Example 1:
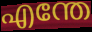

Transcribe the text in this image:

എന്തേ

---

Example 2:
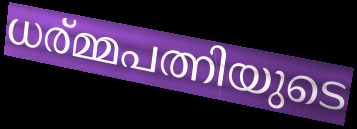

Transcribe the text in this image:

ധര്മ്മപത്നിയുടെ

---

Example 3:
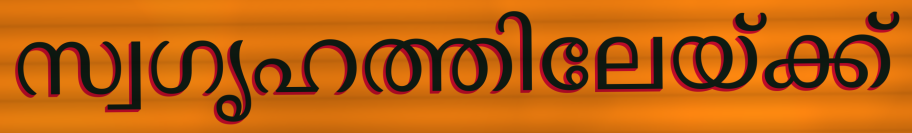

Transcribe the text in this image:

സ്വഗൃഹത്തിലേയ്ക്ക്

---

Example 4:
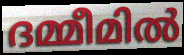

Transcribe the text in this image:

ദമ്മീമിൽ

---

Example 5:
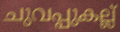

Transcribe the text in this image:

ചുവപ്പുകല്ല്